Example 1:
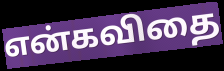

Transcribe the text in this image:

என்கவிதை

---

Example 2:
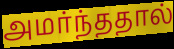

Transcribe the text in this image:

அமர்ந்ததால்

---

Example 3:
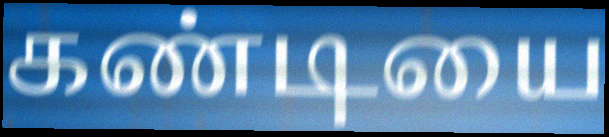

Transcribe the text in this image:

கண்டியை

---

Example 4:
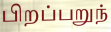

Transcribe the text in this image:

பிறப்பறுந்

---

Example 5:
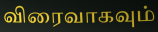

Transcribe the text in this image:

விரைவாகவும்